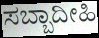
ಸಬ್ಬಾದೀಹಿ